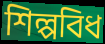
শিল্পবিধ